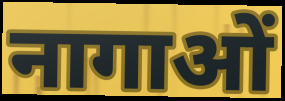
नागाओं